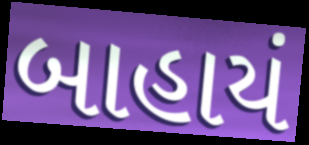
બાહાયં